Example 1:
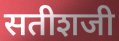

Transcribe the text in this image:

सतीशजी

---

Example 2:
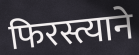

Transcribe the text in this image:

फिरस्त्याने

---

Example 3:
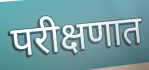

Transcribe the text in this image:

परीक्षणात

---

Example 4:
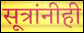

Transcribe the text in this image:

सूत्रांनीही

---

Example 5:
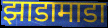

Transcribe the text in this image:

झाडामाडा